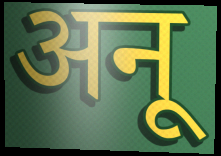
अनू